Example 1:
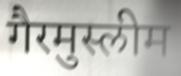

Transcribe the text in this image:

गैरमुस्लीम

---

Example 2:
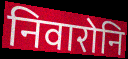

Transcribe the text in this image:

निवारोनि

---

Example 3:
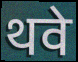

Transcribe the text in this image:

थवे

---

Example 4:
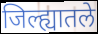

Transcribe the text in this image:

जिल्ह्यातले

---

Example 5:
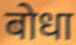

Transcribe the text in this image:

बोधा